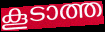
കൂടാത്ത